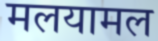
मलयामल